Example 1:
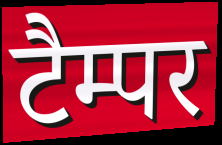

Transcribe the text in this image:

टैम्पर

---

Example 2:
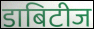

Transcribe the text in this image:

डाबिटीज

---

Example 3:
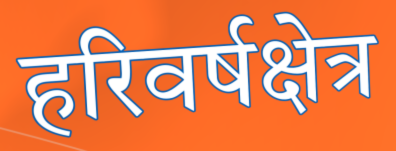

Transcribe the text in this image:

हरिवर्षक्षेत्र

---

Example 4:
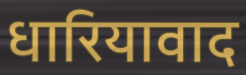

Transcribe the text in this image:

धारियावाद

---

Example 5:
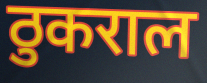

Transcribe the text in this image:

ठुकराल